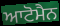
ਆਟੋਮੈਨ